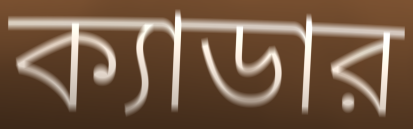
ক্যাডার